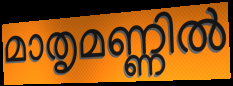
മാതൃമണ്ണിൽ